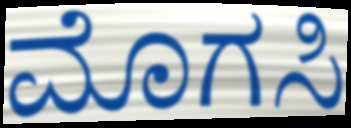
ಮೊಗಸಿ